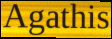
Agathis